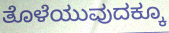
ತೊಳೆಯುವುದಕ್ಕೂ